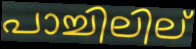
പാച്ചിലില്